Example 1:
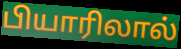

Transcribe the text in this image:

பியாரிலால்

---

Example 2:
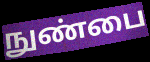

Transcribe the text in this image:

நுண்பை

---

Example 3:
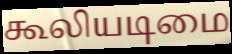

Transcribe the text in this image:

கூலியடிமை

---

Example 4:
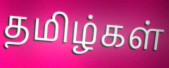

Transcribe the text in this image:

தமிழ்கள்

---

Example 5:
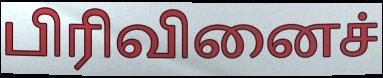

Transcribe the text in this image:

பிரிவினைச்